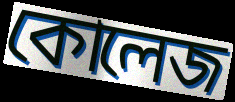
কোলেজ